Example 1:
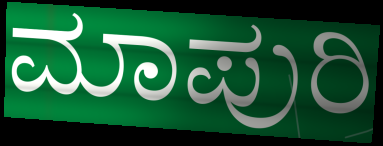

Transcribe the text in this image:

ಮಾಪುರಿ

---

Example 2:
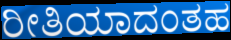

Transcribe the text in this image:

ರೀತಿಯಾದಂತಹ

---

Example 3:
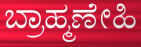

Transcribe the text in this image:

ಬ್ರಾಹ್ಮಣೇಹಿ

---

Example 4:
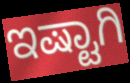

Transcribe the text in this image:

ಇಷ್ಟಾಗಿ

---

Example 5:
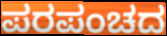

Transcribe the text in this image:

ಪರಪಂಚದ